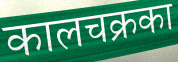
कालचक्रका